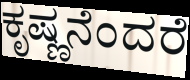
ಕೃಷ್ಣನೆಂದರೆ